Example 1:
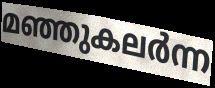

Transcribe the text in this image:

മഞ്ഞുകലർന്ന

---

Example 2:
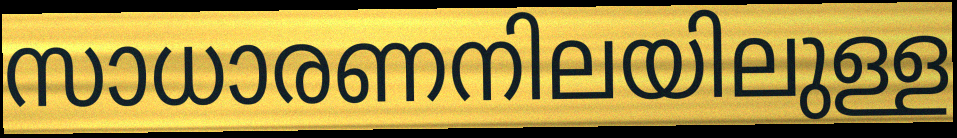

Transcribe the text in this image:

സാധാരണനിലയിലുള്ള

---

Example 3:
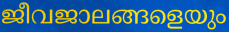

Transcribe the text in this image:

ജീവജാലങ്ങളെയും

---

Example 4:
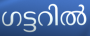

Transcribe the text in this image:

ഗട്ടറിൽ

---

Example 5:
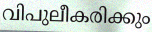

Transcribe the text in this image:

വിപുലീകരിക്കും